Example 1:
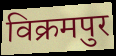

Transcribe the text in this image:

विक्रमपुर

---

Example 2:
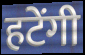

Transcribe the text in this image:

हटेंगी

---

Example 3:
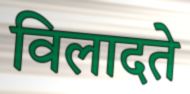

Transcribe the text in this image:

विलादते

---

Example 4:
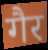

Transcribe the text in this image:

गैर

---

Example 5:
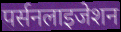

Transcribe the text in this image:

पर्सनलाइजेशन